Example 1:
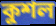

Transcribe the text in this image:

কুশল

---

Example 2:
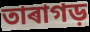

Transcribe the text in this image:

তাৰাগড়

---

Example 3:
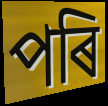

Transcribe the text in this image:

পৰি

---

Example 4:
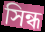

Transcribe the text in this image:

সিন্ধ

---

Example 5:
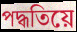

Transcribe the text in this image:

পদ্ধতিয়ে